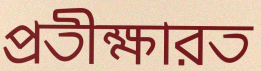
প্রতীক্ষারত